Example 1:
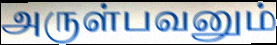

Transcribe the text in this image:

அருள்பவனும்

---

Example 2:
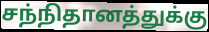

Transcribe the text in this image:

சந்நிதானத்துக்கு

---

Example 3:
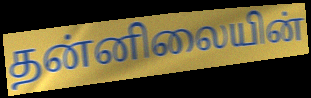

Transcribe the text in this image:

தன்னிலையின்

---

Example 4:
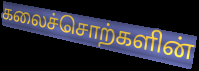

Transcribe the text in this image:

கலைச்சொற்களின்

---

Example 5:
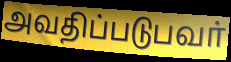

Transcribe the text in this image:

அவதிப்படுபவர்